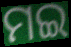
ମଇ